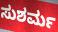
ಸುಶರ್ಮ